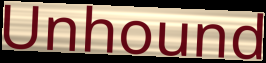
Unhound